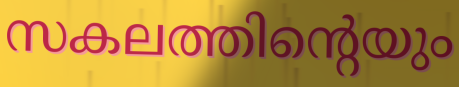
സകലത്തിന്റെയും